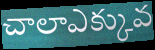
చాలాఎక్కువ